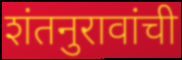
शंतनुरावांची